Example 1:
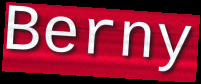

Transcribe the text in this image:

Berny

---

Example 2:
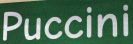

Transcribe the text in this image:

Puccini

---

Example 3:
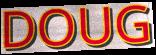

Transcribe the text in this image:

DOUG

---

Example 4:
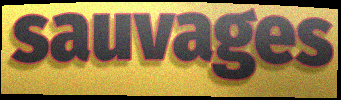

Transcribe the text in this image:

sauvages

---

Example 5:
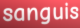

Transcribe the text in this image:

sanguis